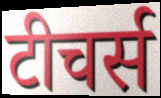
टीचर्स